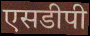
एसडीपी